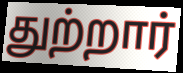
துற்றார்